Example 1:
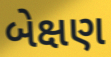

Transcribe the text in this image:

બેક્ષણ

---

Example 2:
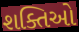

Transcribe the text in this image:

શક્તિઓ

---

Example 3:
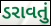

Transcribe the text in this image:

ડરાવતું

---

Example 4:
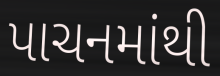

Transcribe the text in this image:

પાચનમાંથી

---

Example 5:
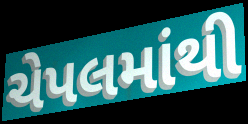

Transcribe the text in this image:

ચેપલમાંથી